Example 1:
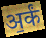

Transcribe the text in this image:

अ॒र्कं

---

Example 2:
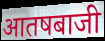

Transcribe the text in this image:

आतषबाजी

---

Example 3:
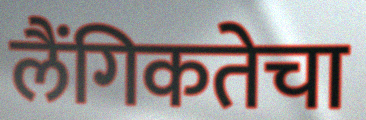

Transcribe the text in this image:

लैंगिकतेचा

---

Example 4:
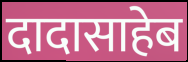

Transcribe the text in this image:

दादासाहेब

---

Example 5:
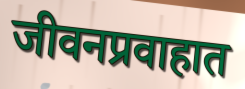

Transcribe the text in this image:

जीवनप्रवाहात